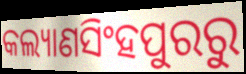
କଲ୍ୟାଣସିଂହପୁରରୁ